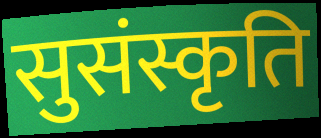
सुसंस्कृति